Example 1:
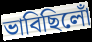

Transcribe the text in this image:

ভাবিছিলোঁ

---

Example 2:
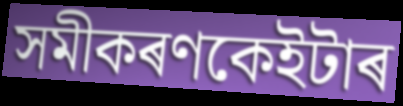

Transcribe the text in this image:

সমীকৰণকেইটাৰ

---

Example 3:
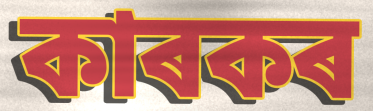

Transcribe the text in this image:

কাৰকৰ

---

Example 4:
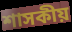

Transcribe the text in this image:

শাসকীয়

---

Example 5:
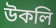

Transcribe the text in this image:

উকলি